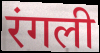
रंगली